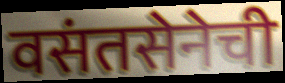
वसंतसेनेची